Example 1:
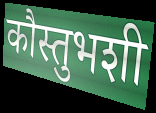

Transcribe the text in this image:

कौस्तुभशी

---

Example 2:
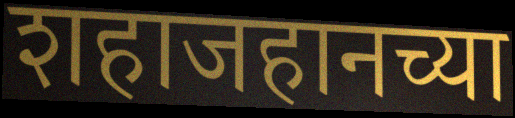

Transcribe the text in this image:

शहाजहानच्या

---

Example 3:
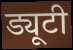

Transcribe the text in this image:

ड्यूटी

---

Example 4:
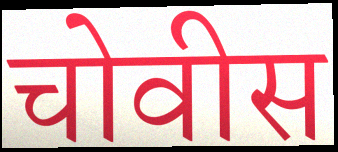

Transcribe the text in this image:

चोवीस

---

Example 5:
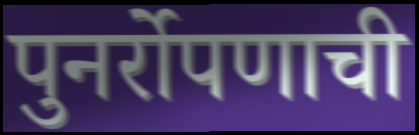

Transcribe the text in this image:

पुनर्रोपणाची